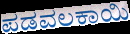
ಪಡವಲಕಾಯಿ